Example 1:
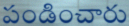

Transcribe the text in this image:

పండించారు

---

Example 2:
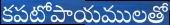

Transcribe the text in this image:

కపటోపాయములతో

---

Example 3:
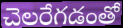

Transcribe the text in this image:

చెలరేగడంతో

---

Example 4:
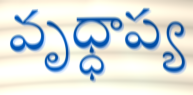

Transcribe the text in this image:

వృధ్ధాప్య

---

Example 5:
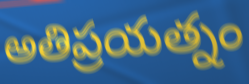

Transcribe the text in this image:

అతిప్రయత్నం